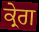
ਕ੍ਰੇਗ